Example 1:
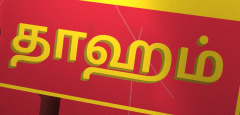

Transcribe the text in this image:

தாஹம்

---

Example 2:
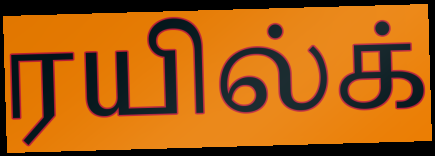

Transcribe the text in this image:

ரயில்க்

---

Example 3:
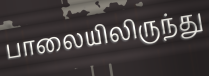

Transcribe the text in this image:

பாலையிலிருந்து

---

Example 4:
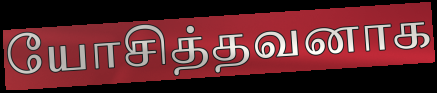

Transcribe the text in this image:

யோசித்தவனாக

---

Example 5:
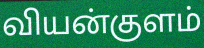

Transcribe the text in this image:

வியன்குளம்